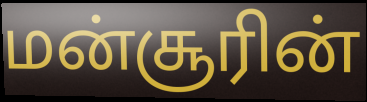
மன்சூரின்